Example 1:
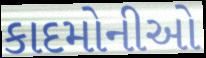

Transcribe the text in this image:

કાદમોનીઓ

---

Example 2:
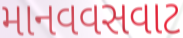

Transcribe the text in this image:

માનવવસવાટ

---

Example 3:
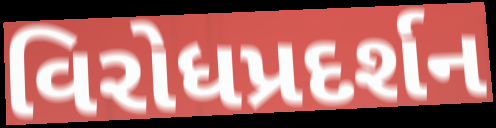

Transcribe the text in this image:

વિરોધપ્રદર્શન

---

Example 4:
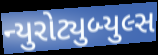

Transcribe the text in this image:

ન્યુરોટ્યુબ્યુલ્સ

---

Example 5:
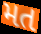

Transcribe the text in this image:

મત